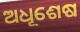
ଅଧୂଶେଷ